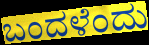
ಬಂದಳೆಂದು